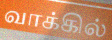
வாக்கில்